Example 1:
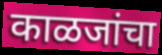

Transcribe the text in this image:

काळजांचा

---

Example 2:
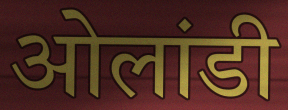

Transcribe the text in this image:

ओलांडी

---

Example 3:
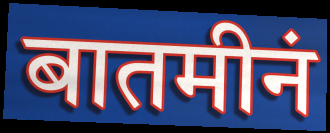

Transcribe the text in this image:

बातमीनं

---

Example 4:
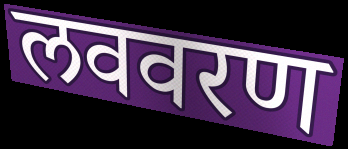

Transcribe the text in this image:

लववरण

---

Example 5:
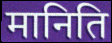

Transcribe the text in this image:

मानिति